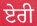
ਏਰੀ